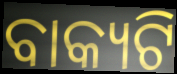
ବାକ୍ୟଟି